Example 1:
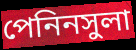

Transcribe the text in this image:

পেনিনসুলা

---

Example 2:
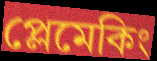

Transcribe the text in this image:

প্লেমেকিং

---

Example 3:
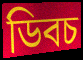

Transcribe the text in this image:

ডিবচ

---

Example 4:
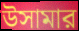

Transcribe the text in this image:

উসামার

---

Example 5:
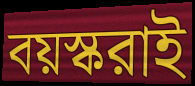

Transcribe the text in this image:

বয়স্করাই